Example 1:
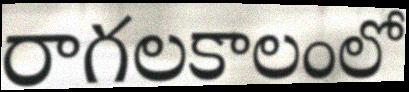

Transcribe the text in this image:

రాగలకాలంలో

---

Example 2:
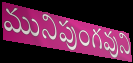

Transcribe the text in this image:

మునిపుంగవుని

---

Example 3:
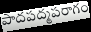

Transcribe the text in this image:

పాదపద్మపరాగం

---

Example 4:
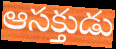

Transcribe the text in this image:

ఆసక్తుడు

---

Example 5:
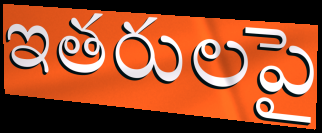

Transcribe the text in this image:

ఇతరులపై